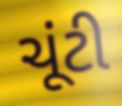
ચૂંટી